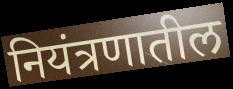
नियंत्रणातील